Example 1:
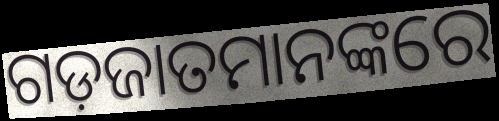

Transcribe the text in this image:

ଗଡ଼ଜାତମାନଙ୍କରେ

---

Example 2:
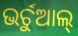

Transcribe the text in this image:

ଭର୍ଚୁଆଲ୍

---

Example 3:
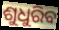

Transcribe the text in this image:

ଶୁଧୁରିବ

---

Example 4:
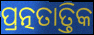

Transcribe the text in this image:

ପ୍ରତ୍ନତାତ୍ତିକ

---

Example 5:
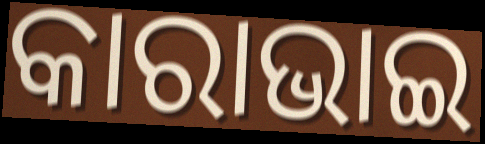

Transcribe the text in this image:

କାରାଭାଇ